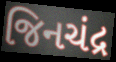
જિનચંદ્ર